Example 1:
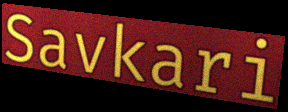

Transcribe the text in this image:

Savkari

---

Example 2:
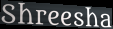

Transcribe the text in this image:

Shreesha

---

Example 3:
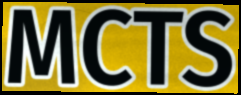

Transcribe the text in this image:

MCTS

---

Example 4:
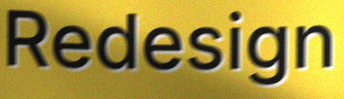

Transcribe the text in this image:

Redesign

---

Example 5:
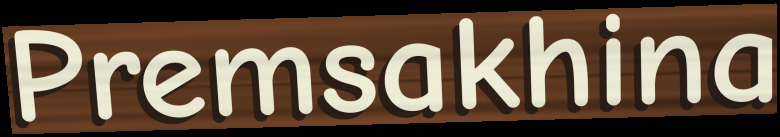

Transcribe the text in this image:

Premsakhina